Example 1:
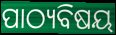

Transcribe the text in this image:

ପାଠ୍ୟବିଷୟ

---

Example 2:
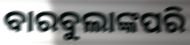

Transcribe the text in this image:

ବାରବୁଲାଙ୍କପରି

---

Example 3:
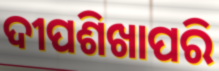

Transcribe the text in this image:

ଦୀପଶିଖାପରି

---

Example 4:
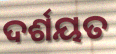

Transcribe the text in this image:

ଦର୍ଶୟତ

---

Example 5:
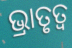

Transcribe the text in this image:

ଭ୍ରାତୃତ୍ଵ